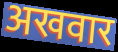
अखवार